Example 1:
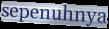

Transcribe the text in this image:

sepenuhnya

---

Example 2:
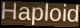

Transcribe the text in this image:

Haploid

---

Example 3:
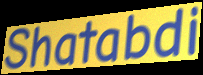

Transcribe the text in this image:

Shatabdi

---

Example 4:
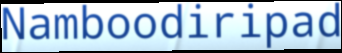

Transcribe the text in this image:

Namboodiripad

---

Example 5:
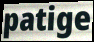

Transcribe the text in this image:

patige